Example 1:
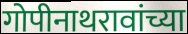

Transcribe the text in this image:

गोपीनाथरावांच्या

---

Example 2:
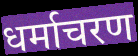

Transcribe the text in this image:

धर्माचरण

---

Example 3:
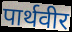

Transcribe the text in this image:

पार्थवीर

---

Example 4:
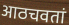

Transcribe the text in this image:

आठचवतां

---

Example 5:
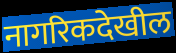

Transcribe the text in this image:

नागरिकदेखील